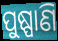
ପୁଷ୍ପାଣି